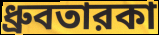
ধ্রুবতারকা